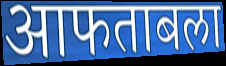
आफताबला